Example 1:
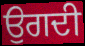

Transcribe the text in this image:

ਉਗਦੀ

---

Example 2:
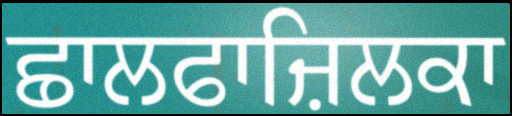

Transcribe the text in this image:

ਛਾਲਫਾਜ਼ਿਲਕਾ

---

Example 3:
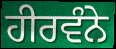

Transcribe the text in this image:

ਹੀਰਵੰਨੇ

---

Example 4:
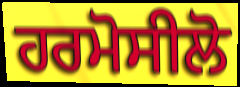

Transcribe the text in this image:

ਹਰਮੋਸੀਲੋ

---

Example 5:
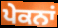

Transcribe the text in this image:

ਪੇਕਨਾਂ